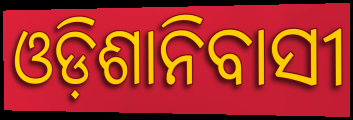
ଓଡ଼ିଶାନିବାସୀ